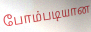
போம்படியான